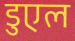
डुएल